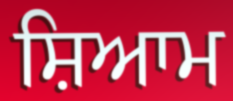
ਸ਼ਿਆਮ